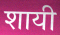
शायी